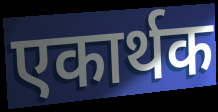
एकार्थक